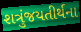
શત્રુંજયતીર્થના